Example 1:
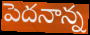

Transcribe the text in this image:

పెదనాన్న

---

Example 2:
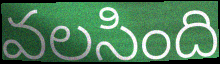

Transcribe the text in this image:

వలసింది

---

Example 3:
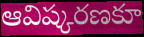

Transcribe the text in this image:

ఆవిష్కరణకూ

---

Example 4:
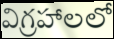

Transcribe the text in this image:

విగ్రహాలలో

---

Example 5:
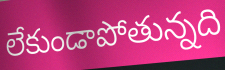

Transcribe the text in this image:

లేకుండాపోతున్నది